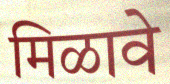
मिळावे